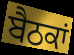
ਬੈਠਕਾਂ